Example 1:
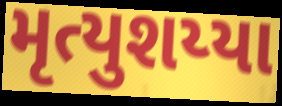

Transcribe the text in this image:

મૃત્યુશય્યા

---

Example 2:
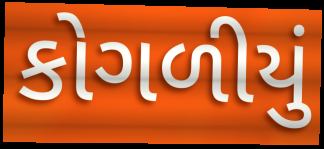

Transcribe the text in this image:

કોગળીયું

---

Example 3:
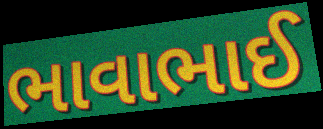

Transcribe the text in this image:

ભાવાભાઈ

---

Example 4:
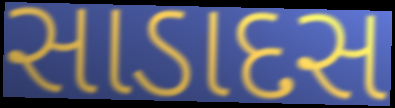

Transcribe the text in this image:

સાડાદસ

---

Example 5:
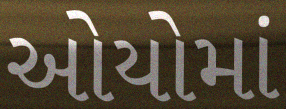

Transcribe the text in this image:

ઓયોમાં